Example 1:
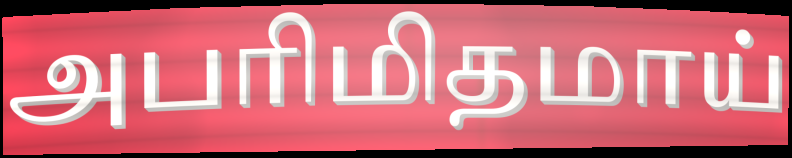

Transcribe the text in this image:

அபரிமிதமாய்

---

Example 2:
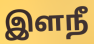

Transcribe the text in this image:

இளநீ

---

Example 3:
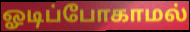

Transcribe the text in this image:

ஓடிப்போகாமல்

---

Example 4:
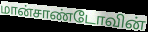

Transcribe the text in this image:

மான்சாண்டோவின்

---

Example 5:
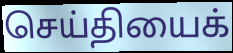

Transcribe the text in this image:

செய்தியைக்